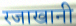
रजाखानी